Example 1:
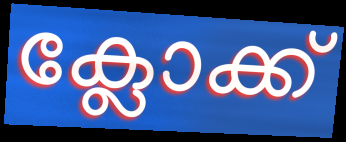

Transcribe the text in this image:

ക്ലോക്ക്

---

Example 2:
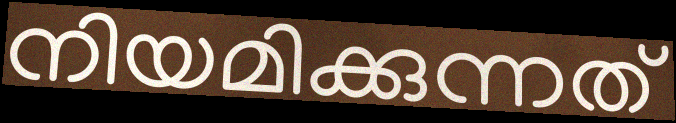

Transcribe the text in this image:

നിയമിക്കുന്നത്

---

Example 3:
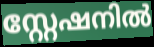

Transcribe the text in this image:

സ്റ്റേഷനിൽ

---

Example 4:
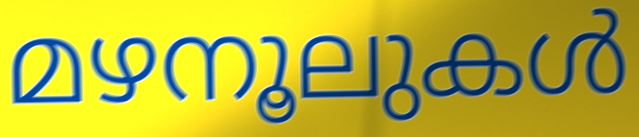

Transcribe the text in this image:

മഴനൂലുകൾ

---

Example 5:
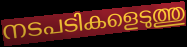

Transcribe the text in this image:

നടപടികളെടുത്തു